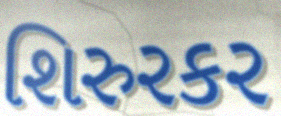
શિરુરકર